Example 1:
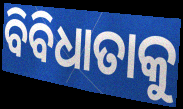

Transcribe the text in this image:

ବିବିଧାତାକୁ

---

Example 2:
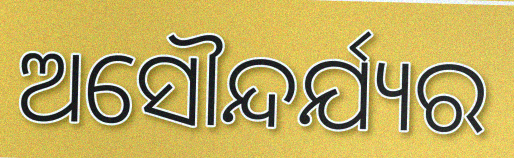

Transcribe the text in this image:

ଅସୌନ୍ଦର୍ଯ୍ୟର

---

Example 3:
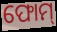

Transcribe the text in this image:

ଫୋମ୍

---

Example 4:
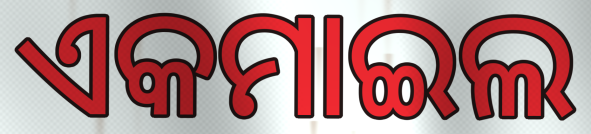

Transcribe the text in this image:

ଏକମାଇଲ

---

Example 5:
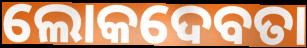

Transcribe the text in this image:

ଲୋକଦେବତା